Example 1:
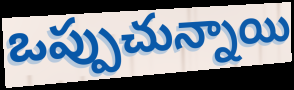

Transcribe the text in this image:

ఒప్పుచున్నాయి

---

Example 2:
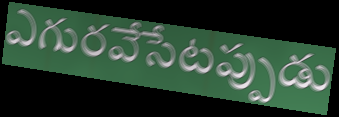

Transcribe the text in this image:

ఎగురవేసేటప్పుడు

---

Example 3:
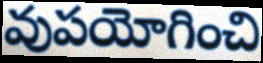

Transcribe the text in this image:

వుపయోగించి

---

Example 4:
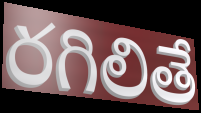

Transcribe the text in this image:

రగిలితే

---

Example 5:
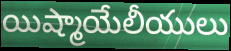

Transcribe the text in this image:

యిష్మాయేలీయులు